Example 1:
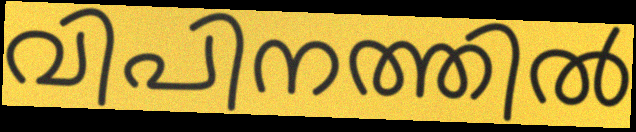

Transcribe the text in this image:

വിപിനത്തിൽ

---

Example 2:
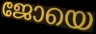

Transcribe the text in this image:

ജോയെ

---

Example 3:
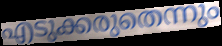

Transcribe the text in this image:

എടുക്കരുതെന്നും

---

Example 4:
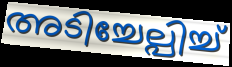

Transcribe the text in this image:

അടിച്ചേല്പിച്ച്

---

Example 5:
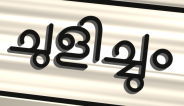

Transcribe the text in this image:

ചുളിച്ചും